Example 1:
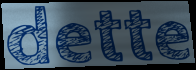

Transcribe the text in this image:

dette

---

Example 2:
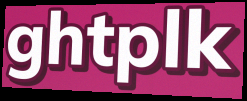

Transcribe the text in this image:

ghtplk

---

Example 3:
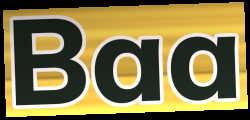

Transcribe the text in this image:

Baa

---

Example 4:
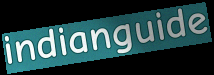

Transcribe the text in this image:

indianguide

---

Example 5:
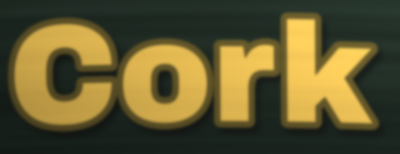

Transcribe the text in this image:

Cork